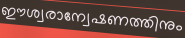
ഈശ്വരാന്വേഷണത്തിനും